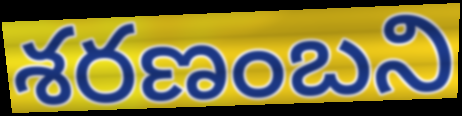
శరణంబని